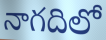
నాగదిలో